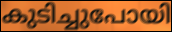
കുടിച്ചുപോയി